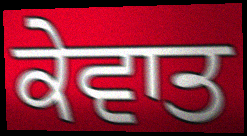
ਕੇਵਾਤ